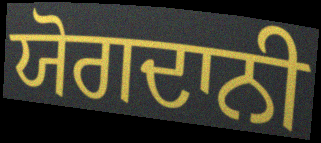
ਯੋਗਦਾਨੀ